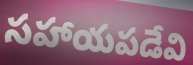
సహాయపడేవి